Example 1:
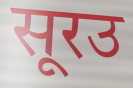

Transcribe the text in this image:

सूरउ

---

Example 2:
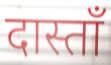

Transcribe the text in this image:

दास्ताँ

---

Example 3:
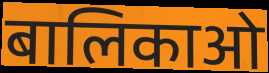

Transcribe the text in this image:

बालिकाओ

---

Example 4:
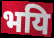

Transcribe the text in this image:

भयि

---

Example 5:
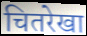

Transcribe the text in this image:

चितरेखा